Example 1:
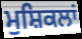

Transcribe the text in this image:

ਮੁਸ਼ਿਕਲਾਂ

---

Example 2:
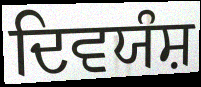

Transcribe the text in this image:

ਦਿਵਯੰਸ਼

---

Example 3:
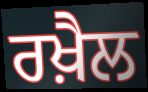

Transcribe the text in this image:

ਰਖ਼ੈਲ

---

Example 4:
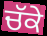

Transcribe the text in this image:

ਚੱਕੇ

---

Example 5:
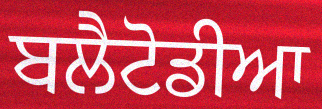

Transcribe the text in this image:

ਬਲੈਟੋਡੀਆ